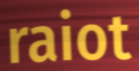
raiot